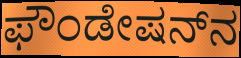
ಫೌಂಡೇಷನ್‌ನ